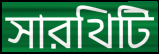
সারথিটি